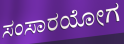
ಸಂಸಾರಯೋಗ